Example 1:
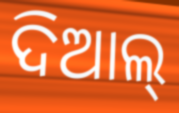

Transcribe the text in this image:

ଦିଆଲ୍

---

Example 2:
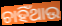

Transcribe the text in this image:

ଚାହିଁଥାଉ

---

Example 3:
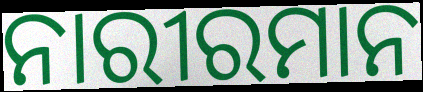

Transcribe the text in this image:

ନାରୀରମାନ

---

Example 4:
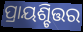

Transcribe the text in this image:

ପ୍ରାୟଶ୍ଚିତ୍ତର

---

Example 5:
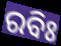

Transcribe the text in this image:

ରବିଃ